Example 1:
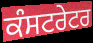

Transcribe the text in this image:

ਕੰਸਟਰੇਟਰ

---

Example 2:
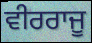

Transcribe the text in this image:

ਵੀਰਰਾਜੂ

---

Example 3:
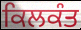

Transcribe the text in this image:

ਕਿਲਕੰਤ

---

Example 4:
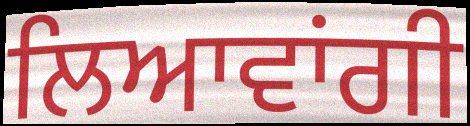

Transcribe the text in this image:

ਲਿਆਵਾਂਗੀ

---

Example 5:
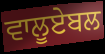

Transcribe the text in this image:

ਵਾਲੂਏਬਲ